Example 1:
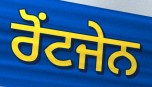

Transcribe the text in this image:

ਰੋਂਟਜੇਨ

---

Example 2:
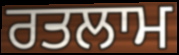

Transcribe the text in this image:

ਰਤਲਾਮ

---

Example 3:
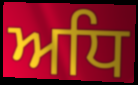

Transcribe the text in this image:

ਅਧਿ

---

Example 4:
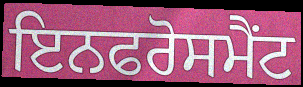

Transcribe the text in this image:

ਇਨਫਰੋਸਮੈਂਟ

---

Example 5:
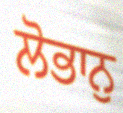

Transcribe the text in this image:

ਲੋਭਾਨੁ